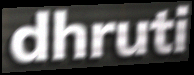
dhruti